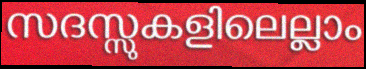
സദസ്സുകളിലെല്ലാം